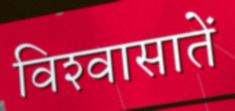
विश्वासातें